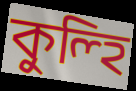
কুল্হি